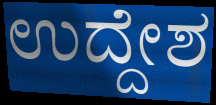
ಉದ್ದೇಶ